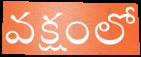
వక్షంలో